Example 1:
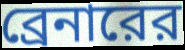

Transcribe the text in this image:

ব্রেনারের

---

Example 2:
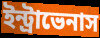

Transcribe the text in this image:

ইন্ট্রাভেনাস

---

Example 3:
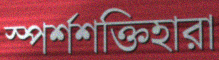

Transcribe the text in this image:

স্পর্শশক্তিহারা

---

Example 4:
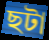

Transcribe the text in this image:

ছটা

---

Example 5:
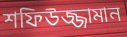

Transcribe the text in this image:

শফিউজ্জামান